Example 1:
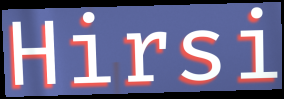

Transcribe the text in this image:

Hirsi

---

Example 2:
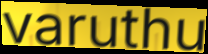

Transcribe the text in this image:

varuthu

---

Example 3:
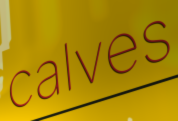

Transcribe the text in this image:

calves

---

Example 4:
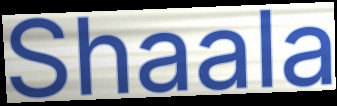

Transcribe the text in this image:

Shaala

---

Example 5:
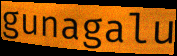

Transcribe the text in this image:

gunagalu